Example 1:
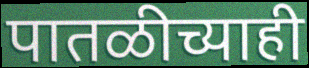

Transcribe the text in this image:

पातळीच्याही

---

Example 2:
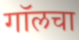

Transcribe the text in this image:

गॉलचा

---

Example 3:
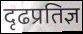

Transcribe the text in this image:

दृढप्रतिज्ञ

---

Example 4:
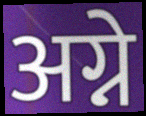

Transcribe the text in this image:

अग्ने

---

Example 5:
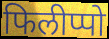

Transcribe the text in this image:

फिलीप्पो